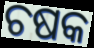
ଚଷକ